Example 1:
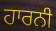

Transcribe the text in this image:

ਹਾਰਨੀ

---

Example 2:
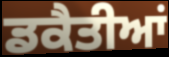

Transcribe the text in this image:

ਡਕੈਤੀਆਂ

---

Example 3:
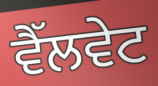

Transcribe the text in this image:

ਵੈੱਲਵੇਟ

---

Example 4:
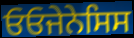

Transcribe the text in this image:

ਓਓਜੇਨੇਸਿਸ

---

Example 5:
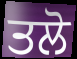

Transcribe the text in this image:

ਤਲੋ